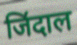
जिंदाल